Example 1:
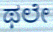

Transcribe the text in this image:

ಥಲೇ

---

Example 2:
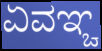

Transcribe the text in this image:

ಏವಞ್ಚ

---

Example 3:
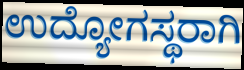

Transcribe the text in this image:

ಉದ್ಯೋಗಸ್ಥರಾಗಿ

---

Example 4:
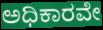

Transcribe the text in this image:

ಅಧಿಕಾರವೇ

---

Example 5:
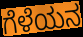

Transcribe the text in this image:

ಗೆಳೆಯನ